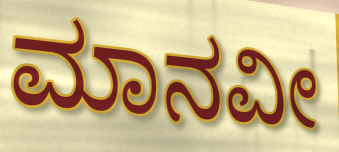
ಮಾನವೀ